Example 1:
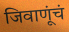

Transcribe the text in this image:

जिवाणूंचं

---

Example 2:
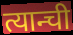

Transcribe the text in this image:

त्यान्ची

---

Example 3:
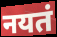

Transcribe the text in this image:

नयतं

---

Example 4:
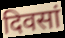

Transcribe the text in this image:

दिवसां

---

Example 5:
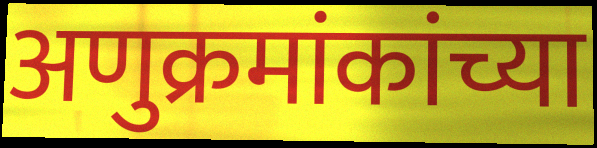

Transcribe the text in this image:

अणुक्रमांकांच्या